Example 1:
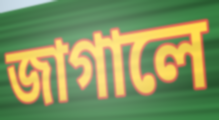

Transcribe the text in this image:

জাগালে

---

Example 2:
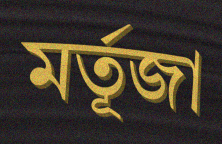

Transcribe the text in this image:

মর্তূজা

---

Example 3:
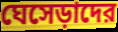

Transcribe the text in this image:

ঘেসেড়াদের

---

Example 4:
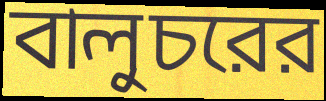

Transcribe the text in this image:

বালুচরের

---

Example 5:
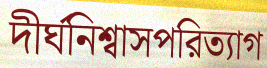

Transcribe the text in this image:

দীর্ঘনিশ্বাসপরিত্যাগ